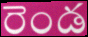
రెండ